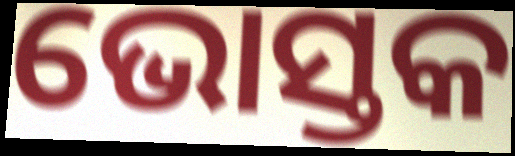
ଭୋସ୍ତକ